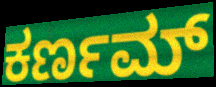
ಕರ್ಣಮ್